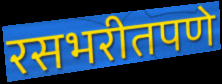
रसभरीतपणे